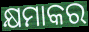
କ୍ଷମାକର